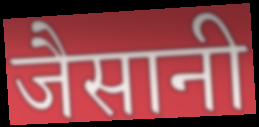
जैसानी